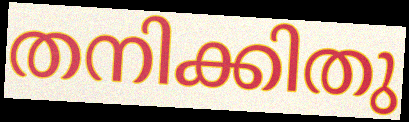
തനിക്കിതു